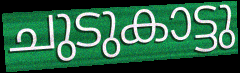
ചുടുകാട്ടു